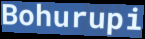
Bohurupi